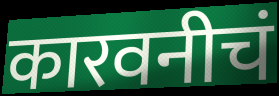
कारवनीचं